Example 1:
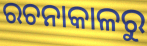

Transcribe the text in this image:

ରଚନାକାଳରୁ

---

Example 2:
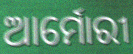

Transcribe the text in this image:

ଆର୍ମୋରୀ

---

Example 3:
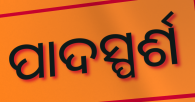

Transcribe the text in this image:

ପାଦସ୍ପର୍ଶ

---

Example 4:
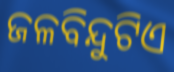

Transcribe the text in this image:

ଜଳବିନ୍ଦୁଟିଏ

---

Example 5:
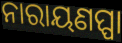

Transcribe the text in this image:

ନାରାୟଣପ୍ପା